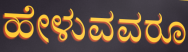
ಹೇಳುವವರೂ